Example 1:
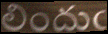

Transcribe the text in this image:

లిందుఁ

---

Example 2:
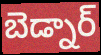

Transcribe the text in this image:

బెడ్నార్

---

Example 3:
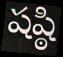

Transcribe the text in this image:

షష్ఠి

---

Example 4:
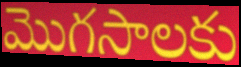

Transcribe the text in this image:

మొగసాలకు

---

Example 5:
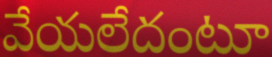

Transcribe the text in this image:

వేయలేదంటూ